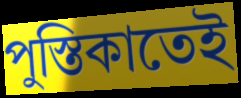
পুস্তিকাতেই